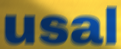
usal